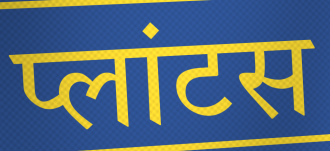
प्लांटस